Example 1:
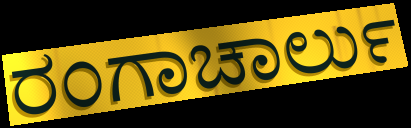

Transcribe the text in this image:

ರಂಗಾಚಾರ್ಲು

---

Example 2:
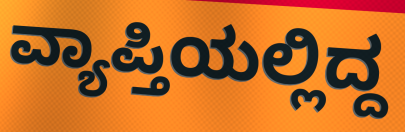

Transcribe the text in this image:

ವ್ಯಾಪ್ತಿಯಲ್ಲಿದ್ದ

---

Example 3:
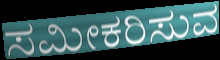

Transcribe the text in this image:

ಸಮೀಕರಿಸುವ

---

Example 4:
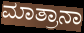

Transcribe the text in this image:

ಮಾತ್ರಾನಾ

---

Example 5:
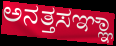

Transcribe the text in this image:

ಅನತ್ತಸಞ್ಞಾ